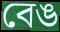
বেঙ